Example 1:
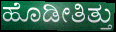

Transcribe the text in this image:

ಹೊಡೀತಿತ್ತು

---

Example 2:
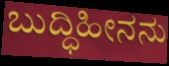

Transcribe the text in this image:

ಬುದ್ಧಿಹೀನನು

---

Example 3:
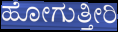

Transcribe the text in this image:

ಹೋಗುತ್ತೀರಿ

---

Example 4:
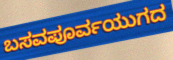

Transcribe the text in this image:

ಬಸವಪೂರ್ವಯುಗದ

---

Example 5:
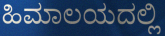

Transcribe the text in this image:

ಹಿಮಾಲಯದಲ್ಲಿ